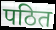
पठित